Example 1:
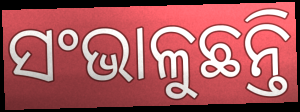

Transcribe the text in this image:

ସଂଭାଳୁଛନ୍ତି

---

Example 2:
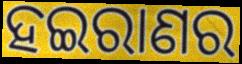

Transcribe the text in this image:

ହଇରାଣର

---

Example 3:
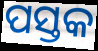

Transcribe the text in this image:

ପସ୍ତକ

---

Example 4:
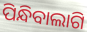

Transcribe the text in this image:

ପିନ୍ଧିବାଲାଗି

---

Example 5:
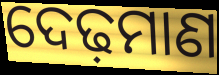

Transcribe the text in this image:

ଦେଢ଼ମାଣ